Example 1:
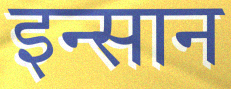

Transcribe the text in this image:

इन्सान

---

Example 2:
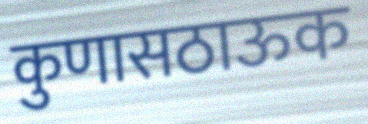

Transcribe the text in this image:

कुणासठाऊक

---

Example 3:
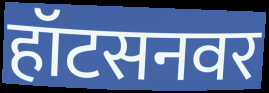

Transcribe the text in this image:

हॉटसनवर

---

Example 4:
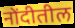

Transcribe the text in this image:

नोंदीतील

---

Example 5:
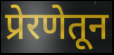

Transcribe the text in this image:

प्रेरणेतून